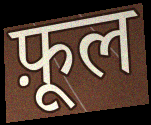
फ़ूल